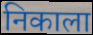
निकाला